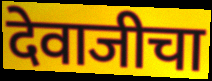
देवाजीचा